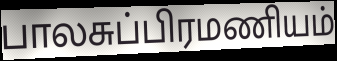
பாலசுப்பிரமணியம்